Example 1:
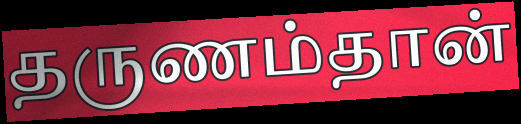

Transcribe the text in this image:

தருணம்தான்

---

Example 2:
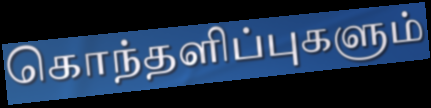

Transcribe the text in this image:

கொந்தளிப்புகளும்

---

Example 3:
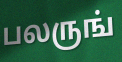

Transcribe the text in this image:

பலருங்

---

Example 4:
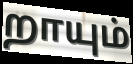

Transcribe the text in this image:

றாயும்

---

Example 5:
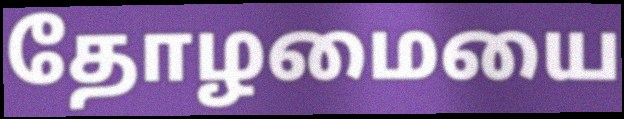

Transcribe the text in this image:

தோழமையை